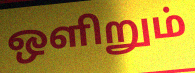
ஒளிறும்